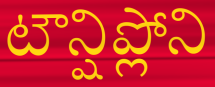
టౌన్షిప్లోని